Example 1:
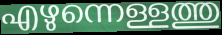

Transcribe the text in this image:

എഴുന്നെള്ളത്തു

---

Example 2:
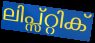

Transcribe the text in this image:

ലിപ്സ്റ്റിക്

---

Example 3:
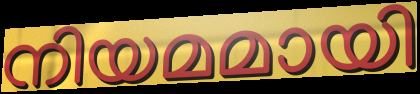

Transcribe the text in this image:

നിയമമായി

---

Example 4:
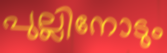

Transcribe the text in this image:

പുല്ലിനോടും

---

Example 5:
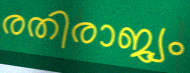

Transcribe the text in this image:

രതിരാജ്യം